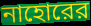
নাহোরের